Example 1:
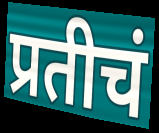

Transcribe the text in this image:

प्रतीचं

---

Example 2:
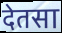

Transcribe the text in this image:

देतसा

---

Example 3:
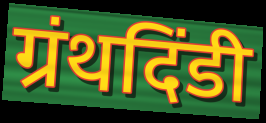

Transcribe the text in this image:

ग्रंथदिंडी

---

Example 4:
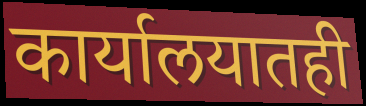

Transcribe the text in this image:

कार्यालयातही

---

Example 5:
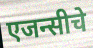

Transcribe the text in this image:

एजन्सीचे